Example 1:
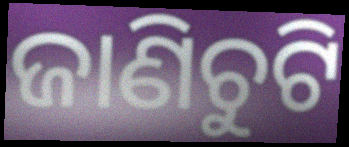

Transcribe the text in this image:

ଜାଣିଚୁଟି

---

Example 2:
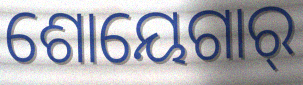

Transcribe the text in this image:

ଶୋୟେଗାର୍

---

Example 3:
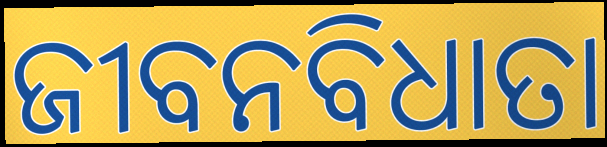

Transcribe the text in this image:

ଜୀବନବିଧାତା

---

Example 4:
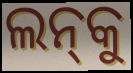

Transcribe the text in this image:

ଲନ୍‌କୁ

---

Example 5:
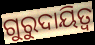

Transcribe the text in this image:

ଗୁରୁଦାୟିତ୍ଵ